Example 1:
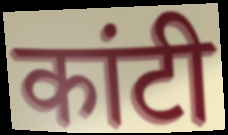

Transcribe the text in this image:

कांटी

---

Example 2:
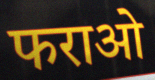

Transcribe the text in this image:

फराओ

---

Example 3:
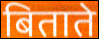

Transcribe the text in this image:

बिताते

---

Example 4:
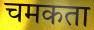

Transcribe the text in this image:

चमकता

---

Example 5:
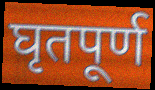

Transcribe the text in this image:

घृतपूर्ण